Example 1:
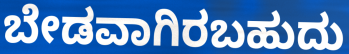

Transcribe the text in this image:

ಬೇಡವಾಗಿರಬಹುದು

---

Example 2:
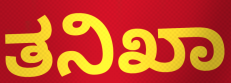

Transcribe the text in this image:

ತನಿಖಾ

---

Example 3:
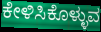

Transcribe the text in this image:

ಕೇಳಿಸಿಕೊಳ್ಳುವ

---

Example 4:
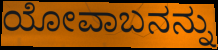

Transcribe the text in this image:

ಯೋವಾಬನನ್ನು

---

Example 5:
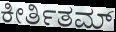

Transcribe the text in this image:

ಕೀರ್ತಿತಮ್